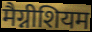
मैग्नीशियम